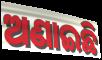
ଅଣାଇଛି